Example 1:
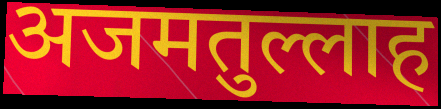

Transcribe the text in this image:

अजमतुल्लाह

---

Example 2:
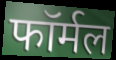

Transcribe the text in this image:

फॉर्मल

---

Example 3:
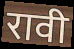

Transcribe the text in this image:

रावी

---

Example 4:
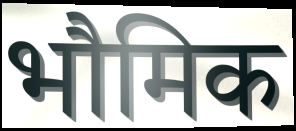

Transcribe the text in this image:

भौमिक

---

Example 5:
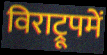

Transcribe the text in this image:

विराट्रूपमें